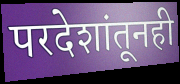
परदेशांतूनही